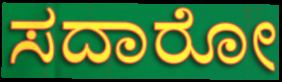
ಸದಾರೋ